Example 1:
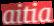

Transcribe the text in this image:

aitia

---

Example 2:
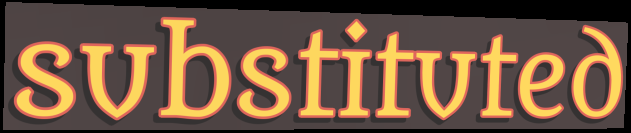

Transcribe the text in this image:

substituted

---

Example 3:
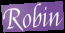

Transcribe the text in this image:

Robin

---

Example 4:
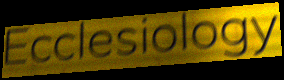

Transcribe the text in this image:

Ecclesiology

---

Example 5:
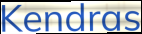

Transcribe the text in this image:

Kendras